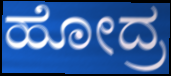
ಹೋದ್ರ